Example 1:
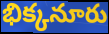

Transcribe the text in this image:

భిక్కనూరు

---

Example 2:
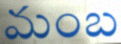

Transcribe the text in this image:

మంబ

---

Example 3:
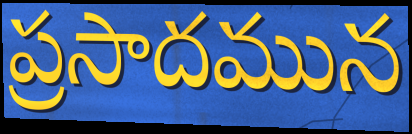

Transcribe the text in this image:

ప్రసాదమున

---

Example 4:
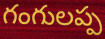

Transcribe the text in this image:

గంగులప్ప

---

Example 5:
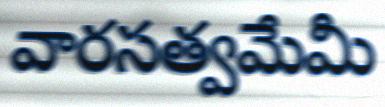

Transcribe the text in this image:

వారసత్వమేమీ